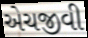
એચજીવી